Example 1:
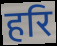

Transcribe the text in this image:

हरि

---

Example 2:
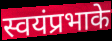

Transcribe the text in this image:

स्वयंप्रभाके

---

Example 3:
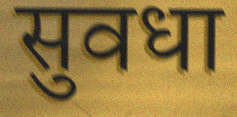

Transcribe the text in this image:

सुवधा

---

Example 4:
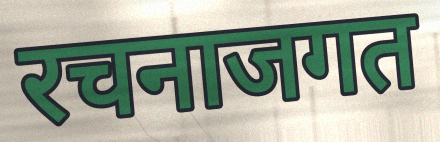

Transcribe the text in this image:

रचनाजगत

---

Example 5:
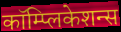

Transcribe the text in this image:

कॉम्प्लिकेशन्स